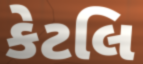
કેટલિ